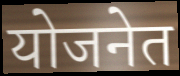
योजनेत